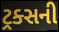
ટ્રક્સની